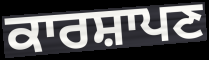
ਕਾਰਸ਼ਾਪਣ